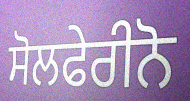
ਸੋਲਫੇਰੀਨੋ